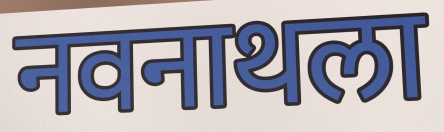
नवनाथला